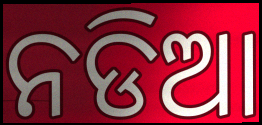
ନଡିଆ